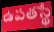
ఉపతస్థే